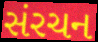
સંરચન